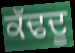
ਕੱਢਦੂ